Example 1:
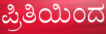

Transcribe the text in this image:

ಪ್ರಿತಿಯಿಂದ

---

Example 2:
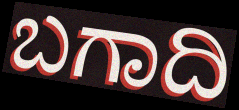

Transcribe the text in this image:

ಬಗಾದಿ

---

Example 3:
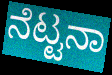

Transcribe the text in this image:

ನೆಟ್ಟನಾ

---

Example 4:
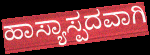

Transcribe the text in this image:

ಹಾಸ್ಯಾಸ್ಪದವಾಗಿ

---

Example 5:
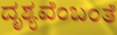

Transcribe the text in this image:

ದೃಶ್ಯವೆಂಬಂತೆ